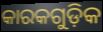
କାରକଗୁଡ଼ିକ